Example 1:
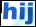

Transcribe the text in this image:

hij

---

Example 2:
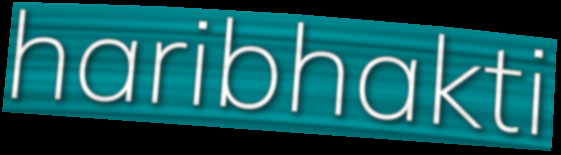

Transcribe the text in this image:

haribhakti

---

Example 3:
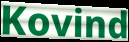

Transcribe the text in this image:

Kovind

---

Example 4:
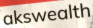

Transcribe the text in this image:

akswealth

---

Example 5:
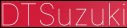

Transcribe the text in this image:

DTSuzuki